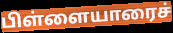
பிள்ளையாரைச்